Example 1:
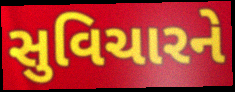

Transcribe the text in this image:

સુવિચારને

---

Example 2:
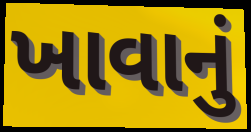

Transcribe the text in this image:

ખાવાનું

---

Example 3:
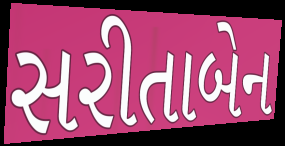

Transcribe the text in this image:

સરીતાબેન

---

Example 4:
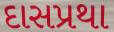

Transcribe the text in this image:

દાસપ્રથા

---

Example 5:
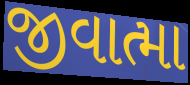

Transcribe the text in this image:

જીવાત્મા